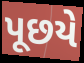
પૂછયે